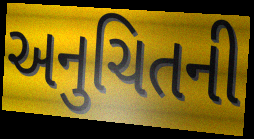
અનુચિતની